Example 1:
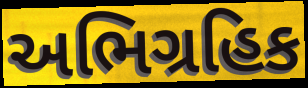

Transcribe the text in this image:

અભિગ્રહિક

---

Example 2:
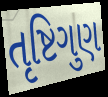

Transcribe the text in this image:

તૃષ્ટિગુણ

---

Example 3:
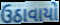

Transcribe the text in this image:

ઉઠાવાયો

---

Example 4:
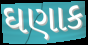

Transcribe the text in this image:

ઘણાક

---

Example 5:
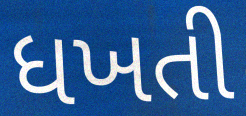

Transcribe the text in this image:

ધખતી